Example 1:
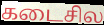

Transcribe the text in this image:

கடைசில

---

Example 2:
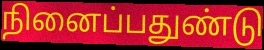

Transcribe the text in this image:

நினைப்பதுண்டு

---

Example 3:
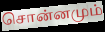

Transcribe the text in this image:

சொன்னமும்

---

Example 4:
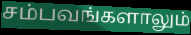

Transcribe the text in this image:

சம்பவங்களாலும்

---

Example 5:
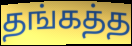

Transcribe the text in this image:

தங்கத்த